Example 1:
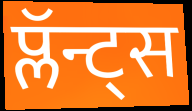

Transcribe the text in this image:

प्लॅन्ट्स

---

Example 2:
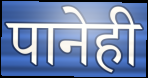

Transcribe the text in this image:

पानेही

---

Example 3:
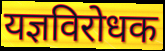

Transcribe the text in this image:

यज्ञविरोधक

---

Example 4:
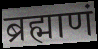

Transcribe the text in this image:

ब्रह्माणं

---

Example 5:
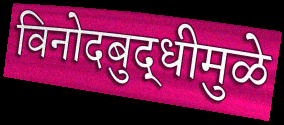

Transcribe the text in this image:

विनोदबुद्धीमुळे